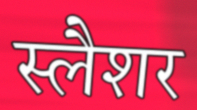
स्लैशर